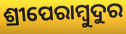
ଶ୍ରୀପେରାମ୍ବୁଦୁର